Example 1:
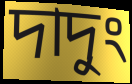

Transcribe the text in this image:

দাদুং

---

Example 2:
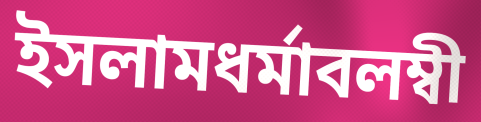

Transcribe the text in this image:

ইসলামধর্মাবলম্বী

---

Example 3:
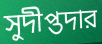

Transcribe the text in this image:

সুদীপ্তদার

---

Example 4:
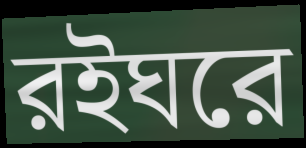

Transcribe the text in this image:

রইঘরে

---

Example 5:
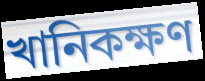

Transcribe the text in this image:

খানিকক্ষণ